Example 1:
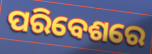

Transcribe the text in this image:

ପରିବେଶରେ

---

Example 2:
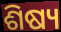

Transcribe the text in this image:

ଶିଷ୍ୟ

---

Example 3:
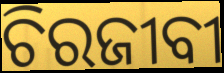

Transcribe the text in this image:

ଚିରଜୀବୀ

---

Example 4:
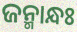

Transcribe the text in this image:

ଜନ୍ମାନ୍ଧଃ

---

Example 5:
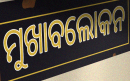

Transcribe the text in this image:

ମୁଖାବଲୋକନ